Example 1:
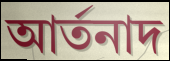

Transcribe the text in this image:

আৰ্তনাদ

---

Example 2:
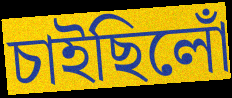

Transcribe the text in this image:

চাইছিলোঁ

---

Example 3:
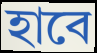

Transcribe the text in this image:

হাবে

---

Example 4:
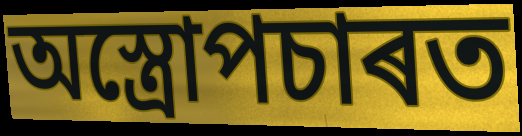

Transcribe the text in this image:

অস্ত্ৰোপচাৰত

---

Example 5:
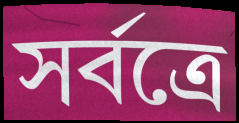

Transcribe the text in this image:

সৰ্বত্ৰে